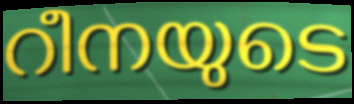
റീനയുടെ